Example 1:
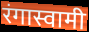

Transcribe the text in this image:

रंगास्वामी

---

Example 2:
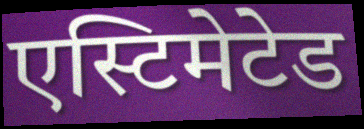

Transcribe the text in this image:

एस्टिमेटेड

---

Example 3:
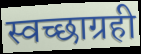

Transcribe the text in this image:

स्वच्छाग्रही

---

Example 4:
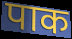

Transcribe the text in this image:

पाक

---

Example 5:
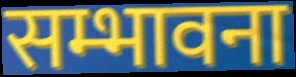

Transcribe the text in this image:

सम्भावना